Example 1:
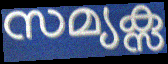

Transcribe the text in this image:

സമ്യക്സ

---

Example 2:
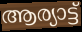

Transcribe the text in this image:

ആര്യാട്ട്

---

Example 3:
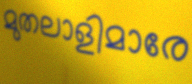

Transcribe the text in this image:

മുതലാളിമാരേ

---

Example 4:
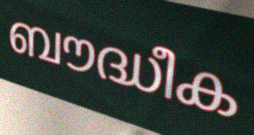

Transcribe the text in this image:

ബൗദ്ധീക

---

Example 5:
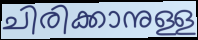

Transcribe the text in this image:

ചിരിക്കാനുള്ള